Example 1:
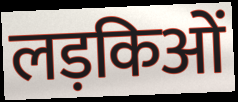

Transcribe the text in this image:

लड़किओं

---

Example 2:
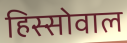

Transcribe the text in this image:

हिस्सोवाल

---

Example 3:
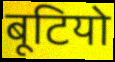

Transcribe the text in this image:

बूटियो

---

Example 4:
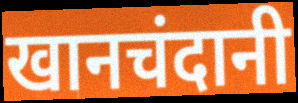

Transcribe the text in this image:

खानचंदानी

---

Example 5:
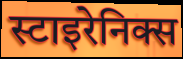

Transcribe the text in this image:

स्टाइरेनिक्स